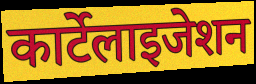
कार्टेलाइजेशन